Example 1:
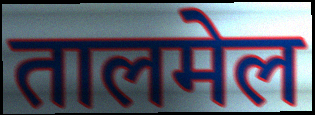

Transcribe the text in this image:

तालमेल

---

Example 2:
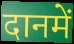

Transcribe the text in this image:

दानमें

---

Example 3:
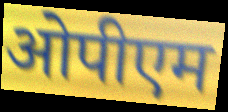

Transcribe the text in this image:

ओपीएम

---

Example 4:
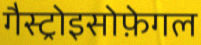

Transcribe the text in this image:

गैस्ट्रोइसोफ़ेगल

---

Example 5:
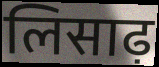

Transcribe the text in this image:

लिसाढ़